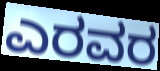
ಎರವರ